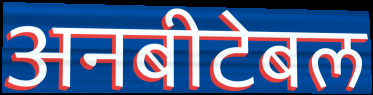
अनबीटेबल